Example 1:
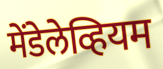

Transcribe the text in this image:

मेंडेलेव्हियम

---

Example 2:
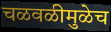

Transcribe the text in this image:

चळवळीमुळेच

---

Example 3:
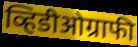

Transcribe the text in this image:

व्हिडीओग्राफी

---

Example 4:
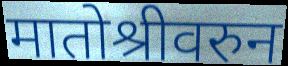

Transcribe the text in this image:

मातोश्रीवरुन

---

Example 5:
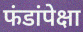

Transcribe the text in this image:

फंडांपेक्षा